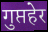
गुप्तहेर